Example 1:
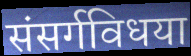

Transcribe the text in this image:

संसर्गविधया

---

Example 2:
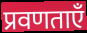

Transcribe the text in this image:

प्रवणताएँ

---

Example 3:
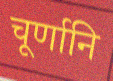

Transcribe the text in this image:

चूर्णानि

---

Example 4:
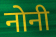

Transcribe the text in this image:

नोनी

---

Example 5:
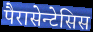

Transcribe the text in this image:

पैरासेन्टेसिस